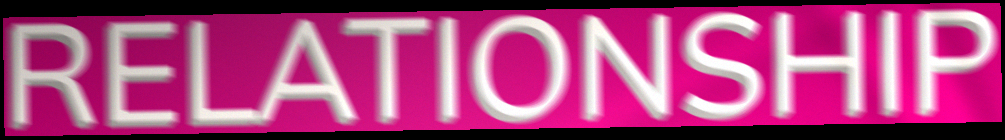
RELATIONSHIP